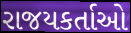
રાજયકર્તાઓ